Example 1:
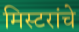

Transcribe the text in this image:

मिस्टरांचे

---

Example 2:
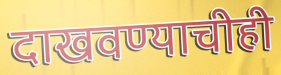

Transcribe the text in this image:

दाखवण्याचीही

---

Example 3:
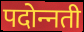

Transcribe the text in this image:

पदोन्‍नती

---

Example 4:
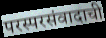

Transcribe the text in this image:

परस्परसंवादाची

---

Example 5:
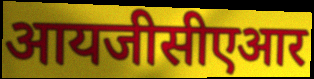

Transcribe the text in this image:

आयजीसीएआर